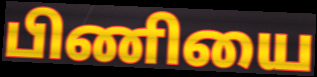
பிணியை